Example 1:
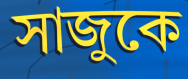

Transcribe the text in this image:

সাজুকে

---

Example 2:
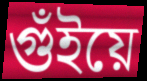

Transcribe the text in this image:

গুঁইয়ে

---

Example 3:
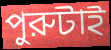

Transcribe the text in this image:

পুরুটাই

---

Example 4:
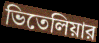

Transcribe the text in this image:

ভিতেলিয়ার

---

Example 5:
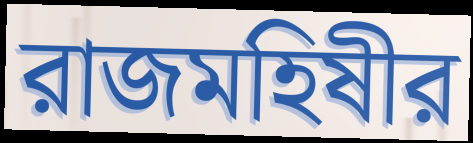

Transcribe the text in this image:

রাজমহিষীর